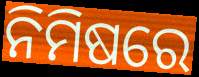
ନିମିଷରେ